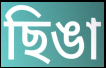
ছিঙা